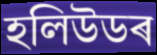
হলিউডৰ